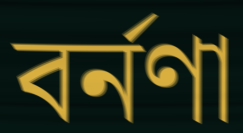
বর্নণা